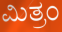
ಮಿತ್ರಂ